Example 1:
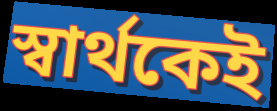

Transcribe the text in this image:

স্বার্থকেই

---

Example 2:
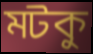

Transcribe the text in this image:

মটকু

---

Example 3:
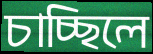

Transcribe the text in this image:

চাচ্ছিলে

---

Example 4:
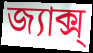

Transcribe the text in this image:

জ্যাক্স্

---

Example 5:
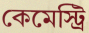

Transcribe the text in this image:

কেমেস্ট্রি